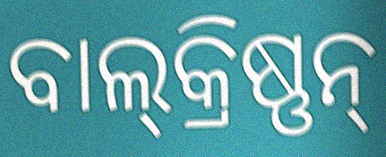
ବାଲ୍‍କ୍ରିଷ୍ଣନ୍